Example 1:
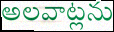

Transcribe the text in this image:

అలవాట్లను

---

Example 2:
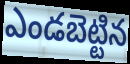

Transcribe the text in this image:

ఎండబెట్టిన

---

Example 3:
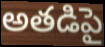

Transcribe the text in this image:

అతడిపై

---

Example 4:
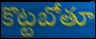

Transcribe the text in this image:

కొట్టబోతూ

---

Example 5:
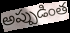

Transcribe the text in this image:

అప్పుడింత